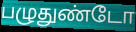
பழுதுண்டோ